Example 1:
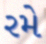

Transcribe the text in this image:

રમે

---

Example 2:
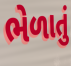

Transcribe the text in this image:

ભેળાતું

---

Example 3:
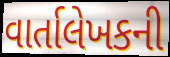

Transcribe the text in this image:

વાર્તાલેખકની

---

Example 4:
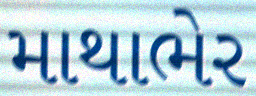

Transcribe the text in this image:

માથાભેર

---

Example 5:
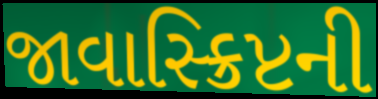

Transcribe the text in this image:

જાવાસ્ક્રિપ્ટની